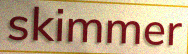
skimmer